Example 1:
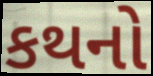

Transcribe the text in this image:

કથનો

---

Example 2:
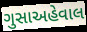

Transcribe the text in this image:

ગુસાઅહેવાલ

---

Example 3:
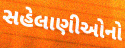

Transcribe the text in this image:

સહેલાણીઓનો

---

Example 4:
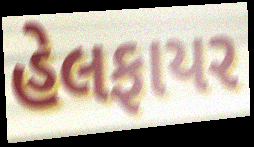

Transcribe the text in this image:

હેલફાયર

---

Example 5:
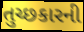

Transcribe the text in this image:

તુચ્છકારની